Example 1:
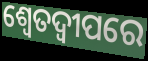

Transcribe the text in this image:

ଶ୍ୱେତଦ୍ୱୀପରେ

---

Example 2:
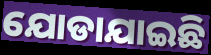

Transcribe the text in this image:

ଯୋଡାଯାଇଛି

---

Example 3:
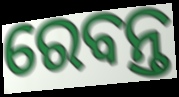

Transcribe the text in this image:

ରେବନ୍ତ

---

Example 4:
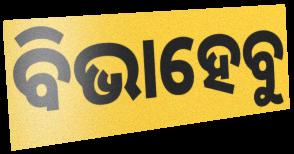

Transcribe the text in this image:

ବିଭାହେବୁ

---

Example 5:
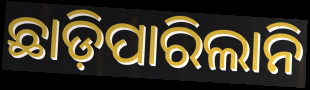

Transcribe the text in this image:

ଛାଡ଼ିପାରିଲାନି